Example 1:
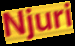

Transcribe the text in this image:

Njuri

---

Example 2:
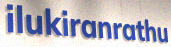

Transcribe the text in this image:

ilukiranrathu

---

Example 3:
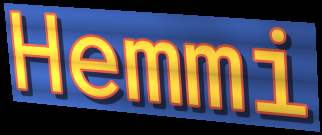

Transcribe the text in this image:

Hemmi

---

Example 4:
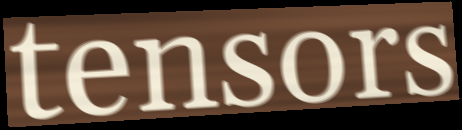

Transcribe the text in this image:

tensors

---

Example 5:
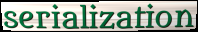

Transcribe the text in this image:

serialization